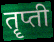
तॄप्ती